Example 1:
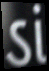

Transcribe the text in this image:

ડાં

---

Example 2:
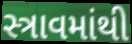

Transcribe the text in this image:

સ્ત્રાવમાંથી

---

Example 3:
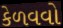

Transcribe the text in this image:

કેળવવો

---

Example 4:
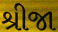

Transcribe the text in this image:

શ્રીજા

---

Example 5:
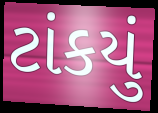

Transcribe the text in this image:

ટાંકયું